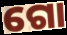
ଗୋ